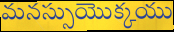
మనస్సుయొక్కయు